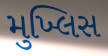
મુખ્લિસ